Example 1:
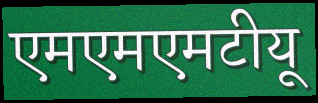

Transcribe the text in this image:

एमएमएमटीयू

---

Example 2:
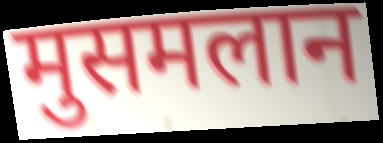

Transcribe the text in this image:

मुसमलान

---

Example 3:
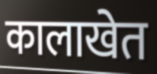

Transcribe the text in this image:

कालाखेत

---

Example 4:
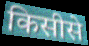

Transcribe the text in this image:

किसीसे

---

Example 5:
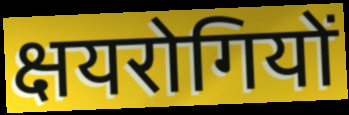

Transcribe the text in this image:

क्षयरोगियों